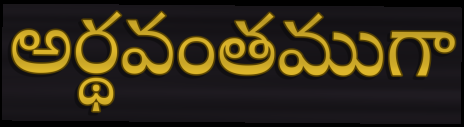
అర్థవంతముగా